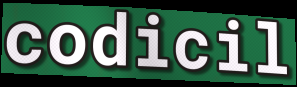
codicil